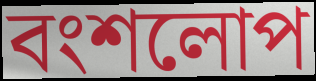
বংশলোপ